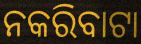
ନକରିବାଟା